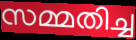
സമ്മതിച്ച